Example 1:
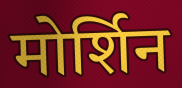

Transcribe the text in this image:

मोर्शिन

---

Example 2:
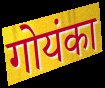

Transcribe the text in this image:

गोयंका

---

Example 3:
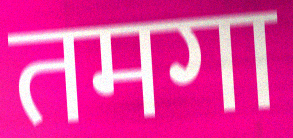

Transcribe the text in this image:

तमगा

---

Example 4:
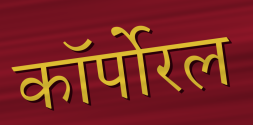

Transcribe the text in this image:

कॉर्पोरल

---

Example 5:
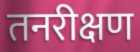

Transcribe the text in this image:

तनरीक्षण